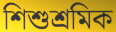
শিশুশ্ৰমিক